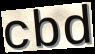
cbd